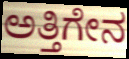
ಅತ್ತಿಗೇನ